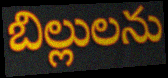
బిల్లులను